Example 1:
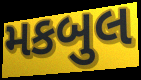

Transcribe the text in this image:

મકબુલ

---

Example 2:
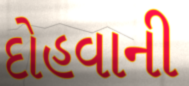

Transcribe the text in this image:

દોહવાની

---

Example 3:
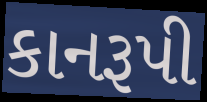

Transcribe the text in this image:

કાનરૂપી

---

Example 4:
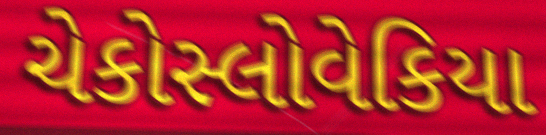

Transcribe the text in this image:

ચેકોસ્લોવેકિયા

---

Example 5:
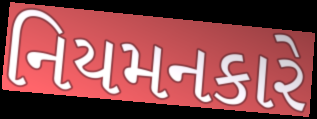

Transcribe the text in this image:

નિયમનકારે